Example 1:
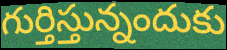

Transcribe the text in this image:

గుర్తిస్తున్నందుకు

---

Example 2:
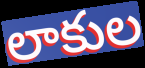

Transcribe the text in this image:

లాకుల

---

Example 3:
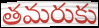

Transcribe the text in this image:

తమరుకు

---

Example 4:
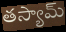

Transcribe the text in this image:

తస్యామ్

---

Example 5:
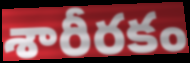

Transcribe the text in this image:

శారీరకం